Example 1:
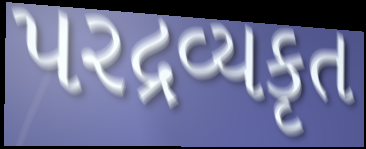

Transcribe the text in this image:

પરદ્રવ્યકૃત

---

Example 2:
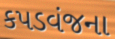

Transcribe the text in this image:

કપડવંજના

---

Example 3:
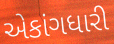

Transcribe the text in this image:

એકાંગધારી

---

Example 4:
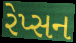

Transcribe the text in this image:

રેપ્સન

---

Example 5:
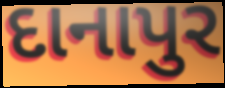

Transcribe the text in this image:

દાનાપુર